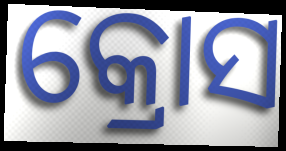
କ୍ରୋସ